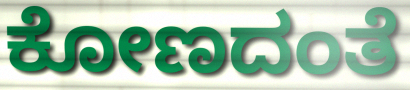
ಕೋಣದಂತೆ